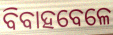
ବିବାହବେଳେ